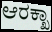
ಆರಕ್ಖಾ